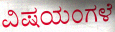
ವಿಷಯಂಗಳೆ